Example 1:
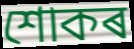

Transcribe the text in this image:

শোকৰ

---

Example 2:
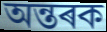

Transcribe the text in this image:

অন্তৰক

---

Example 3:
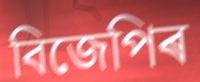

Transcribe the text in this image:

বিজেপিৰ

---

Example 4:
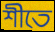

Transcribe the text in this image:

শীতে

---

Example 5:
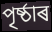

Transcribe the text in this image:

পৃষ্ঠাৰ